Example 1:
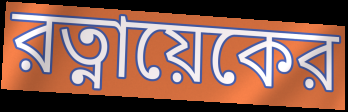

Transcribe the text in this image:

রত্নায়েকের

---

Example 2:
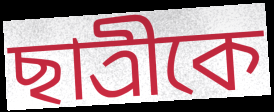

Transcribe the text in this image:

ছাত্রীকে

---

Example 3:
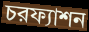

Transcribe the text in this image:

চরফ্যাশন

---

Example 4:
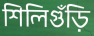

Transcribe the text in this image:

শিলিগুঁড়ি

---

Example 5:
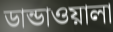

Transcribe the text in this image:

ডান্ডাওয়ালা